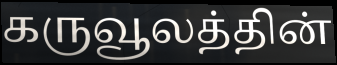
கருவூலத்தின்